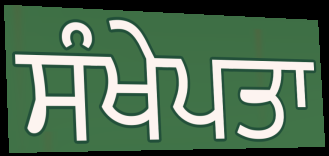
ਸੰਖੇਪਤਾ